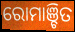
ରୋମାଞ୍ଚିତ